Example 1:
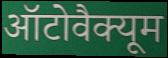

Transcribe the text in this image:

ऑटोवैक्यूम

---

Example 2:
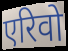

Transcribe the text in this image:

एरिवो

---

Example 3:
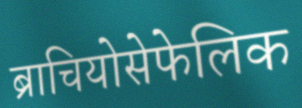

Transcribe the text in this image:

ब्राचियोसेफेलिक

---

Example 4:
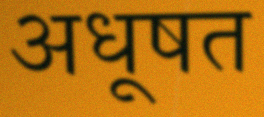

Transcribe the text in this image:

अधूषत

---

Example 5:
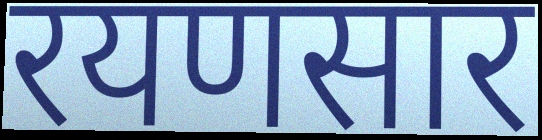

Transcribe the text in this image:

रयणसार